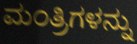
ಮಂತ್ರಿಗಳನ್ನು